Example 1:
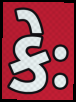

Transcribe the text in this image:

કેઃ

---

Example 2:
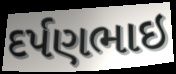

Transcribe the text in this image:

દર્પણભાઇ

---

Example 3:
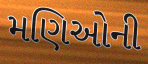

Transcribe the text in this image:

મણિઓની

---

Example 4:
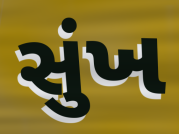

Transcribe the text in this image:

સુંખ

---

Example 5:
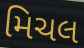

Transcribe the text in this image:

મિચલ